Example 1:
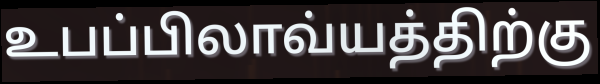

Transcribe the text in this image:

உபப்பிலாவ்யத்திற்கு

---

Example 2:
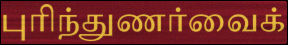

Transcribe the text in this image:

புரிந்துணர்வைக்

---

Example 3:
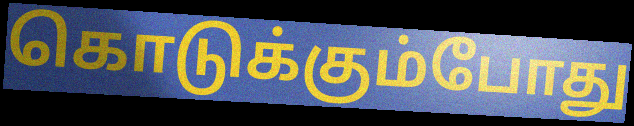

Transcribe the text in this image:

கொடுக்கும்போது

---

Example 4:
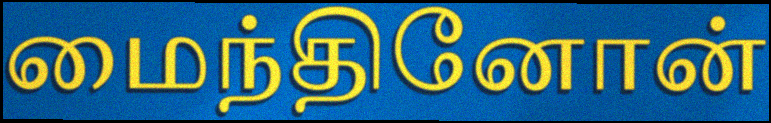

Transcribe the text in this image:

மைந்தினோன்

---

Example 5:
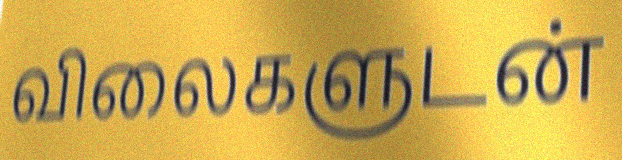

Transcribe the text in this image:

விலைகளுடன்